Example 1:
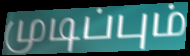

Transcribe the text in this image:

முடிப்பும்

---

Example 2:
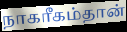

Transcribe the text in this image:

நாகரீகம்தான்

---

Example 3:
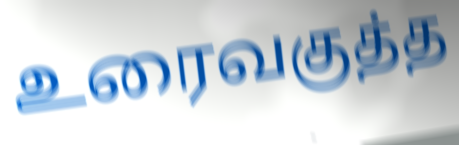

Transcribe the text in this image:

உரைவகுத்த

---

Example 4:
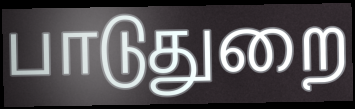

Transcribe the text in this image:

பாடுதுறை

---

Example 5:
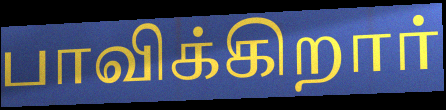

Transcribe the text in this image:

பாவிக்கிறார்